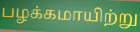
பழக்கமாயிற்று